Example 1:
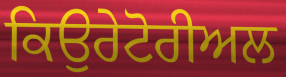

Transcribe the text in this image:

ਕਿਉਰੇਟੋਰੀਅਲ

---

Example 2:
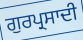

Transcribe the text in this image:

ਗੁਰਪ੍ਰਸਾਦੀ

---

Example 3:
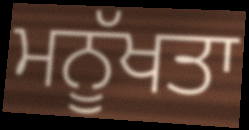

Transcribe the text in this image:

ਮਨੂੱਖਤਾ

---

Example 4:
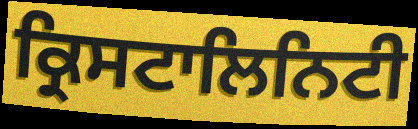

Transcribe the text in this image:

ਕ੍ਰਿਸਟਾਲਿਨਿਟੀ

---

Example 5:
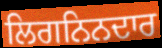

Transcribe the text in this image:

ਲਿਗਨਿਨਦਾਰ